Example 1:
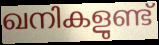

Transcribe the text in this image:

ഖനികളുണ്ട്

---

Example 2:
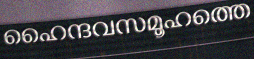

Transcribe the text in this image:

ഹൈന്ദവസമൂഹത്തെ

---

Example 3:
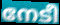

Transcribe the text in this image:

നേടീ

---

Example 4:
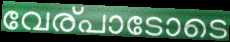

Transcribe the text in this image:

വേര്പാടോടെ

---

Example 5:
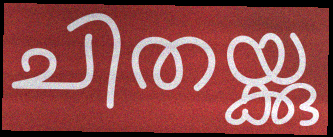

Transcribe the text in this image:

ചിതയ്ക്കു